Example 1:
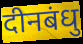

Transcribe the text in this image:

दीनबंधु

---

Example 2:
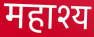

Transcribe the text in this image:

महाश्य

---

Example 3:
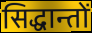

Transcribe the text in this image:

सिद्धान्तों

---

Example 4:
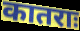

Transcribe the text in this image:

कातराः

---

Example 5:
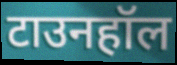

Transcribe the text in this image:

टाउनहॉल